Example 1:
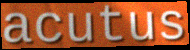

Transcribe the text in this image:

acutus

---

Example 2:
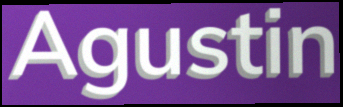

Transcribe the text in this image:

Agustin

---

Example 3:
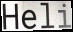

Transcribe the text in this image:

Heli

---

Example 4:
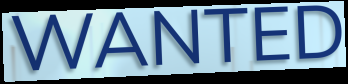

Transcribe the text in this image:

WANTED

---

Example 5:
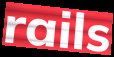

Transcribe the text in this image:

rails